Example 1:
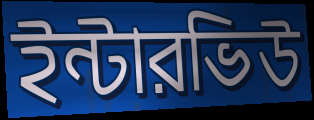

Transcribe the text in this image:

ইন্টারভিউ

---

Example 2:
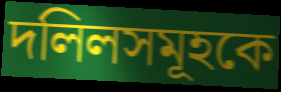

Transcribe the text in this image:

দলিলসমূহকে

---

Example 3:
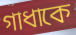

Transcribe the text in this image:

গাধাকে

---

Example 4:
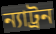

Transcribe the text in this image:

ন্যাট্রন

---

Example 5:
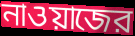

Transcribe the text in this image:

নাওয়াজের